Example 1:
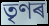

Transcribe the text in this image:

তৃণৰ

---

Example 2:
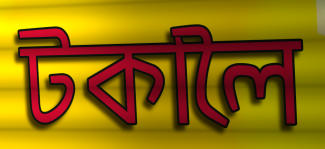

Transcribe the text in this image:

টকালৈ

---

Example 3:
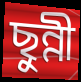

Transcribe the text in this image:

ছুন্নী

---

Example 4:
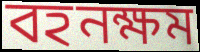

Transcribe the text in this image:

বহনক্ষম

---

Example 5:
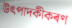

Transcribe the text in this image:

উৎপাদকীকৰণ